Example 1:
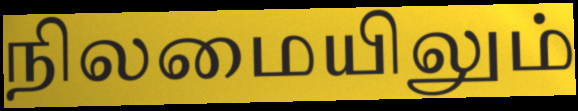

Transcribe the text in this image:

நிலமையிலும்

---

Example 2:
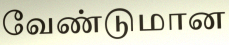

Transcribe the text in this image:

வேண்டுமான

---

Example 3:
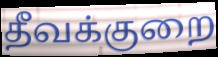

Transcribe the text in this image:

தீவக்குறை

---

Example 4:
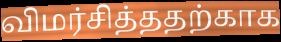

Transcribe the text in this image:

விமர்சித்ததற்காக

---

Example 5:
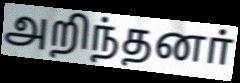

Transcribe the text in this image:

அறிந்தனர்